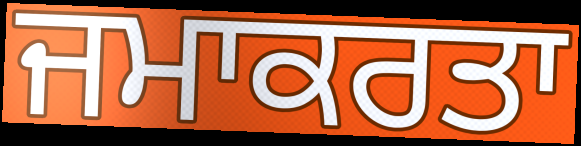
ਜਮਾਕਰਤਾ